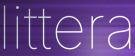
littera